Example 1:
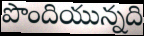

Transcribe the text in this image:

పొందియున్నది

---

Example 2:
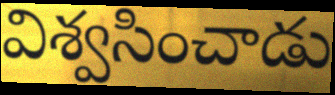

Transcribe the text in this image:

విశ్వసించాడు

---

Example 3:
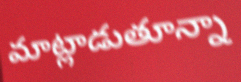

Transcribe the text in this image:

మాట్లాడుతూన్నా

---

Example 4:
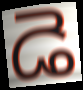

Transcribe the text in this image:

డె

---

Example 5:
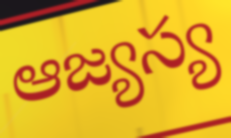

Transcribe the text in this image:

ఆజ్యస్య